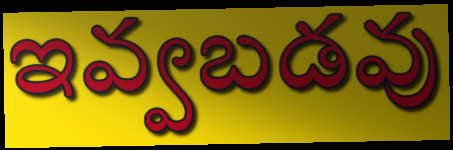
ఇవ్వబడవు